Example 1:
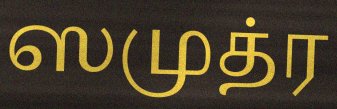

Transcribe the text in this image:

ஸமுத்ர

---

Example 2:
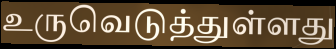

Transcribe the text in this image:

உருவெடுத்துள்ளது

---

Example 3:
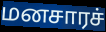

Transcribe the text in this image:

மனசாரச்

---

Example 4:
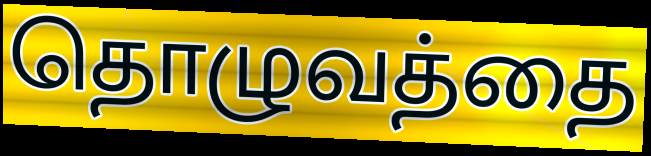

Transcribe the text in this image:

தொழுவத்தை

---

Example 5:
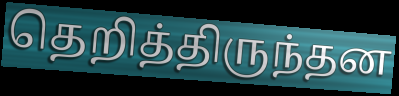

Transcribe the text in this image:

தெறித்திருந்தன